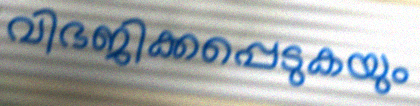
വിഭജിക്കപ്പെടുകയും